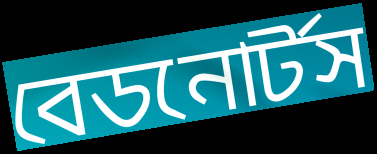
বেডনোর্টস